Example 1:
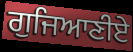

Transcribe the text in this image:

ਗੁਜਿਆਣੀਏ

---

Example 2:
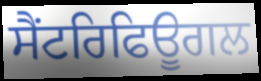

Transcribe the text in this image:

ਸੈਂਟਰਿਫਿਊਗਲ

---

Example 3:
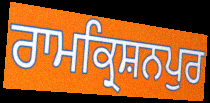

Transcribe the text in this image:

ਰਾਮਕ੍ਰਿਸ਼ਨਪੁਰ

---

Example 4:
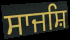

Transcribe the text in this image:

ਸਾਜਸ਼ਿ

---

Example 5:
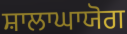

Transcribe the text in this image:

ਸ਼ਾਲਾਘਾਯੋਗ